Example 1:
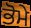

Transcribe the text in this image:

ਭੋਮੇ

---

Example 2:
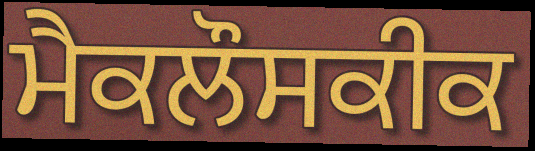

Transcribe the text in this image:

ਮੈਕਲੌਸਕੀਕ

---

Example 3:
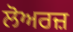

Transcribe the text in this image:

ਲੋਅਰਜ਼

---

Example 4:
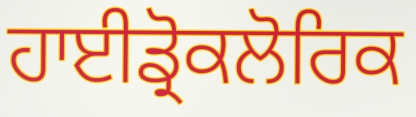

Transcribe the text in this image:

ਹਾਈਡ੍ਰੋਕਲੋਰਿਕ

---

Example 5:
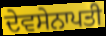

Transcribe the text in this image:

ਦੇਵਸੇਨਾਪਤੀ